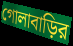
গোলাবাড়ির